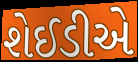
શેઈડીએ